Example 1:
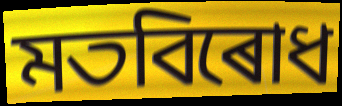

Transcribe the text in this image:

মতবিৰোধ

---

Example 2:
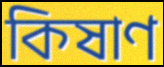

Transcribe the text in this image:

কিষাণ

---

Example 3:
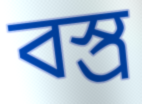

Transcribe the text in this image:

বস্ত্ৰ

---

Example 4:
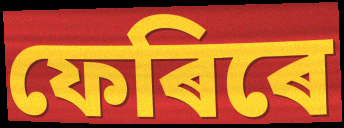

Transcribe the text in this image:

ফেৰিৰে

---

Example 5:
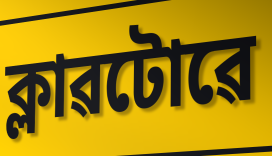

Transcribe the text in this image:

ক্লাৱটোৱে